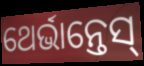
ଥେର୍ଭାନ୍ତେସ୍